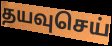
தயவுசெய்